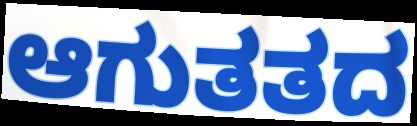
ಆಗುತತದ